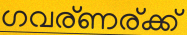
ഗവര്ണര്ക്ക്